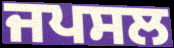
ਜਪਸਲ